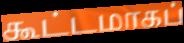
கூட்டமாகப்